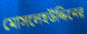
মোসলেহউদ্দিনের